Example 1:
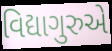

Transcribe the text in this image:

વિદ્યાગુરુએ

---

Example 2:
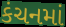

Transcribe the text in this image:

કંચનમાં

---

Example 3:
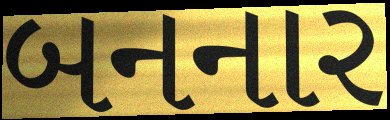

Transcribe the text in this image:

બનનાર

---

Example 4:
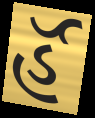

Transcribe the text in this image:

ર્હૅ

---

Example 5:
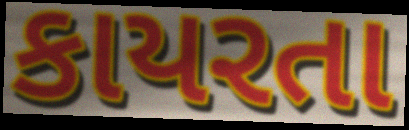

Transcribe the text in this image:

કાયરતા